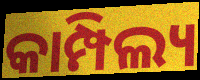
କାମ୍ପିଲ୍ୟ